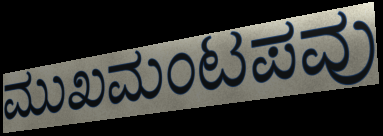
ಮುಖಮಂಟಪವು